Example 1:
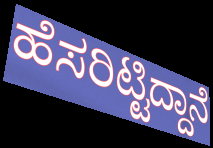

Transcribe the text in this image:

ಹೆಸರಿಟ್ಟಿದ್ದಾನೆ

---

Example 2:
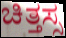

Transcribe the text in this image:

ಚಿತ್ತಸ್ಸ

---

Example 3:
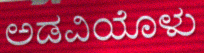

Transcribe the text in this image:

ಅಡವಿಯೊಳು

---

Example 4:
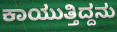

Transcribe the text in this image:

ಕಾಯುತ್ತಿದ್ದನು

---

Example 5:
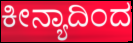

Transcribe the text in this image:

ಕೀನ್ಯಾದಿಂದ